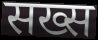
सख्स